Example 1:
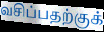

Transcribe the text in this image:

வசிப்பதற்குக்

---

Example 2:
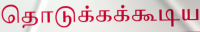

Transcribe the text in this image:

தொடுக்கக்கூடிய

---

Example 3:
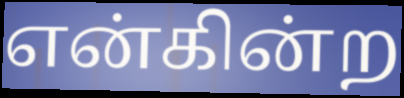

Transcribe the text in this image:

என்கின்ற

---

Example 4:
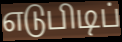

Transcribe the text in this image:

எடுபிடிப்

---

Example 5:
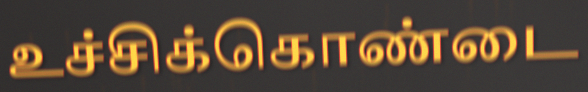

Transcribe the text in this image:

உச்சிக்கொண்டை